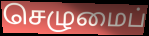
செழுமைப்